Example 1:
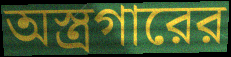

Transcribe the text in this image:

অস্ত্রগারের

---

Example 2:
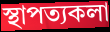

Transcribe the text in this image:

স্থাপত্যকলা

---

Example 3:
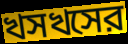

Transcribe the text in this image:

খসখসের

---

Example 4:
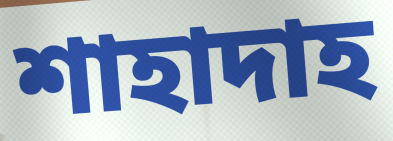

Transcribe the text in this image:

শাহাদাহ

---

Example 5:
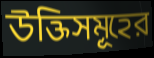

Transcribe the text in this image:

উক্তিসমূহের